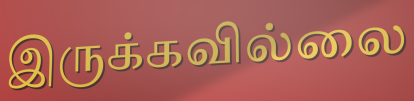
இருக்கவில்லை